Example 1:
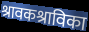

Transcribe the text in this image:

श्रावकश्राविका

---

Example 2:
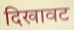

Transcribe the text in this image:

दिखावट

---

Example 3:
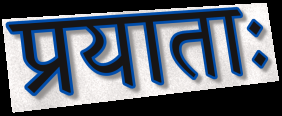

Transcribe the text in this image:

प्रयाताः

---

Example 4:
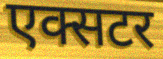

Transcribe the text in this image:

एक्सटर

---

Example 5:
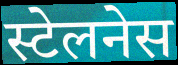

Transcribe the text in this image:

स्टेलनेस